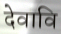
देवावि